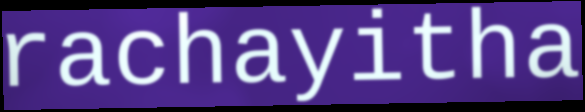
rachayitha